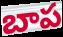
బాప